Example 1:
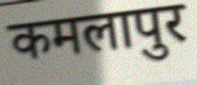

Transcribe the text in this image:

कमलापुर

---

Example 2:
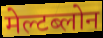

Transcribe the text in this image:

मेल्टब्लोन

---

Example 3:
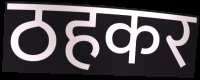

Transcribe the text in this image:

ठहकर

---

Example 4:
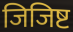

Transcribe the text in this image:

जिजिष्ट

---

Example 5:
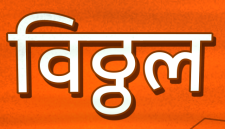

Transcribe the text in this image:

विठ्ठल